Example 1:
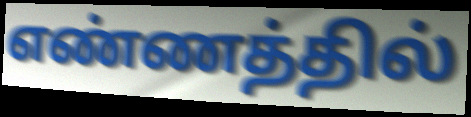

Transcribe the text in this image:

எண்ணத்தில்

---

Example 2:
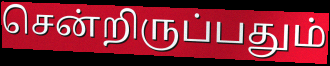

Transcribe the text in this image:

சென்றிருப்பதும்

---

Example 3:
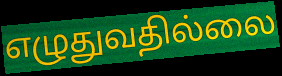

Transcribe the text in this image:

எழுதுவதில்லை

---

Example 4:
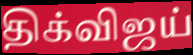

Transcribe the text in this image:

திக்விஜய்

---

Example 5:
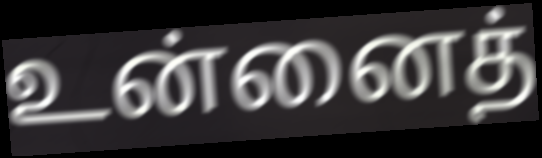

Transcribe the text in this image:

உன்னைத்